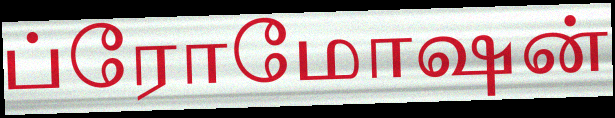
ப்ரோமோஷன்